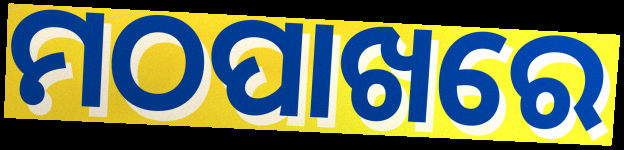
ମଠପାଖରେ